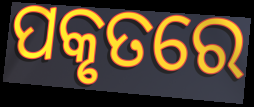
ପକୃତରେ